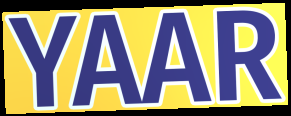
YAAR